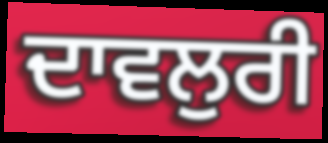
ਦਾਵਲੁਰੀ